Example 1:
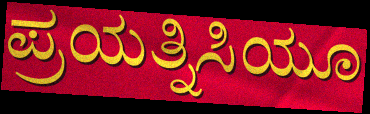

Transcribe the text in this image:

ಪ್ರಯತ್ನಿಸಿಯೂ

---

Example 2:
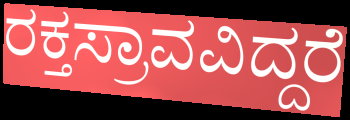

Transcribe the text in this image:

ರಕ್ತಸ್ರಾವವಿದ್ದರೆ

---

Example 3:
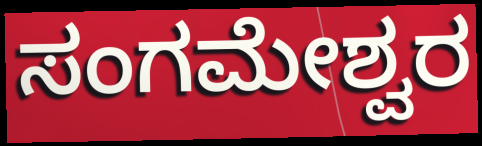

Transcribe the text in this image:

ಸಂಗಮೇಶ್ವರ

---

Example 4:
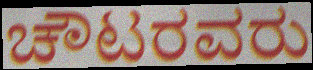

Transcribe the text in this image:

ಚೌಟರವರು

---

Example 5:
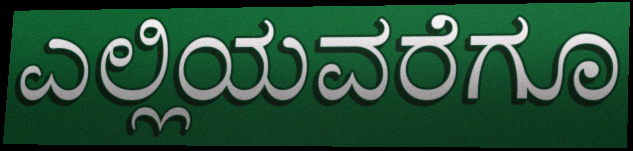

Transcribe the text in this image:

ಎಲ್ಲಿಯವರೆಗೂ